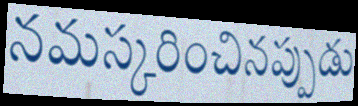
నమస్కరించినప్పుడు